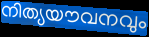
നിത്യയൗവനവും